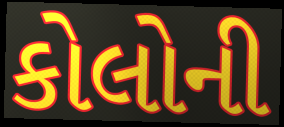
કોલોની